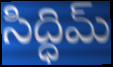
సిద్ధిమ్